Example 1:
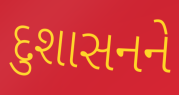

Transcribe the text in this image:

દુશાસનને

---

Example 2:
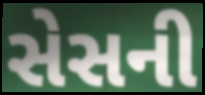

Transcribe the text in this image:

સેસની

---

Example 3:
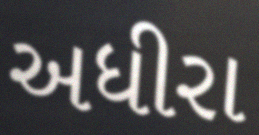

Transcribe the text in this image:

અધીરા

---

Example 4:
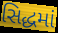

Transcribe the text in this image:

સિદ્ધમાં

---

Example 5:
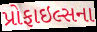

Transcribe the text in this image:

પ્રોફાઇલ્સના